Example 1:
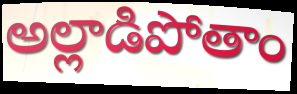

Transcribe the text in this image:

అల్లాడిపోతాం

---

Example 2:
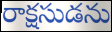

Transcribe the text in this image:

రాక్షసుడను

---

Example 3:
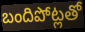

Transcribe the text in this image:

బందిపోట్లతో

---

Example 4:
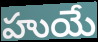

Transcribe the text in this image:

హుయే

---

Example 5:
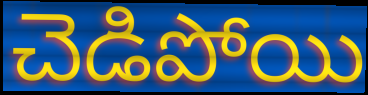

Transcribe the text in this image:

చెడిపోయి